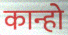
कान्हो